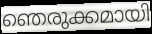
ഞെരുക്കമായി